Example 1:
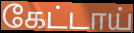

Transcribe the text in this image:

கேட்டாய்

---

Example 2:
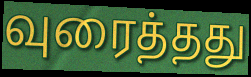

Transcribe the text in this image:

வுரைத்தது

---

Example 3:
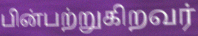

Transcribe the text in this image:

பின்பற்றுகிறவர்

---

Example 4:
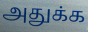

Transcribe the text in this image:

அதுக்க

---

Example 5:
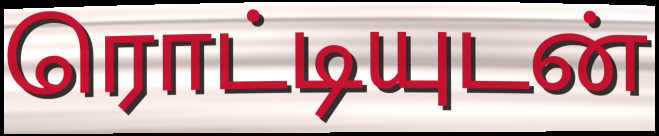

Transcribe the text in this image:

ரொட்டியுடன்